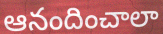
ఆనందించాలా